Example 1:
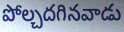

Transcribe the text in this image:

పోల్చదగినవాడు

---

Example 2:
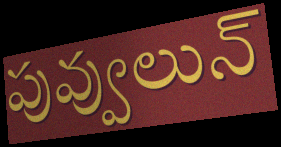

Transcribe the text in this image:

పువ్వులున్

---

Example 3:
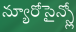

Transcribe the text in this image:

న్యూరోసైన్స్లో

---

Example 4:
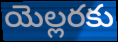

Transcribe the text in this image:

యెల్లరకు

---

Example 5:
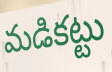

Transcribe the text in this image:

మడికట్టు